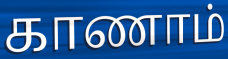
காணாம்